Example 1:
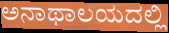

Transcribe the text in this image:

ಅನಾಥಾಲಯದಲ್ಲಿ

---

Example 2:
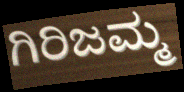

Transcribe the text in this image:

ಗಿರಿಜಮ್ಮ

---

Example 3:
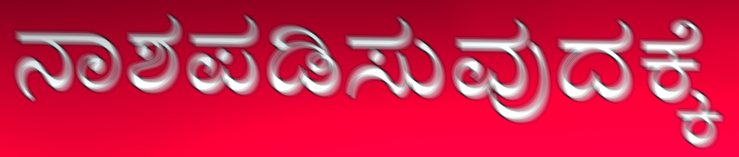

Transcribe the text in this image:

ನಾಶಪಡಿಸುವುದಕ್ಕೆ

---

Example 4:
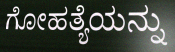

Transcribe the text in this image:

ಗೋಹತ್ಯೆಯನ್ನು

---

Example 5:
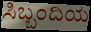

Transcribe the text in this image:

ಸಿಬ್ಬಂದಿಯ